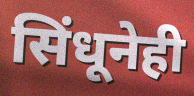
सिंधूनेही